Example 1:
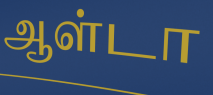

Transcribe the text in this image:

ஆள்டா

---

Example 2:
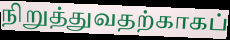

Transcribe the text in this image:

நிறுத்துவதற்காகப்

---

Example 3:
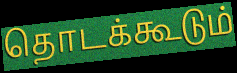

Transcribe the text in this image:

தொடக்கூடும்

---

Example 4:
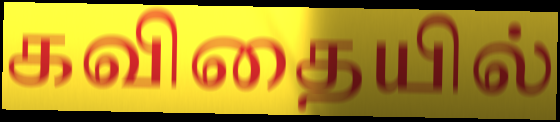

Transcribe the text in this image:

கவிதையில்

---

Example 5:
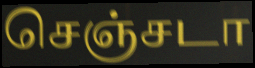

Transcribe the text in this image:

செஞ்சடா